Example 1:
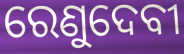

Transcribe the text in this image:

ରେଣୁଦେବୀ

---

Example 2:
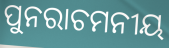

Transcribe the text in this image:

ପୁନରାଚମନୀୟ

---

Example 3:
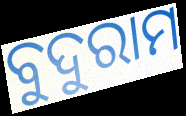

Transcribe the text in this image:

ବୁଦୁରାମ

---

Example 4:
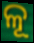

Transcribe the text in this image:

ଳୂ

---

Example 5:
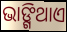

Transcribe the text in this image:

ଭାଙ୍ଗିଥାଏ